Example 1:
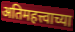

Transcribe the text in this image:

अतिमहत्त्वाच्या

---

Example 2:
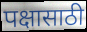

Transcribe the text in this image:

पक्षासाठी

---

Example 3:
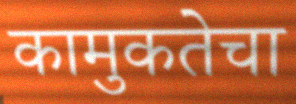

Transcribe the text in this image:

कामुकतेचा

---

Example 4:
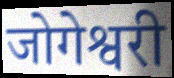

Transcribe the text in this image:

जोगेश्वरी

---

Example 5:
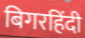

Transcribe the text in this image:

बिगरहिंदी